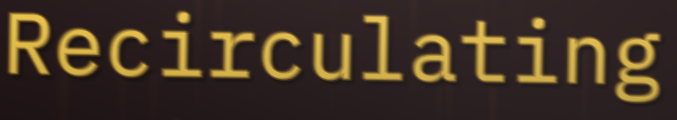
Recirculating